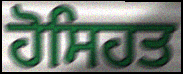
ਹੋਸਿਹਤ